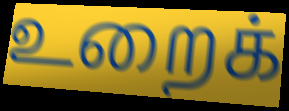
உறைக்